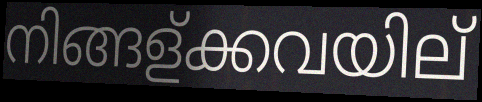
നിങ്ങള്ക്കവയില്